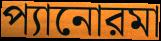
প্যানোরমা